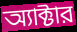
অ্যাক্টার